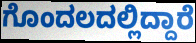
ಗೊಂದಲದಲ್ಲಿದ್ದಾರೆ